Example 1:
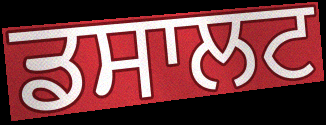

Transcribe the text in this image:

ਡਸਾਲਟ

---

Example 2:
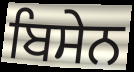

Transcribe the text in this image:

ਬਿਸੇਨ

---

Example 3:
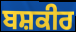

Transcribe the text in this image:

ਬਸ਼ਕੀਰ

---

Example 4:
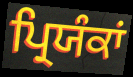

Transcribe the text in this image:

ਪ੍ਰਿਯੰਕਾਂ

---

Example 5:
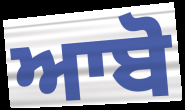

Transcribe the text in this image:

ਆਬੋ